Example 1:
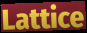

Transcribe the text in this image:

Lattice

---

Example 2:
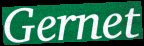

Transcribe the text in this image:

Gernet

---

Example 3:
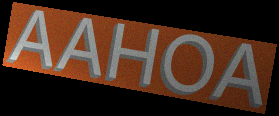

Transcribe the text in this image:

AAHOA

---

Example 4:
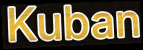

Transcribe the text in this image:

Kuban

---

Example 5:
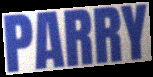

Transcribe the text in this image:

PARRY